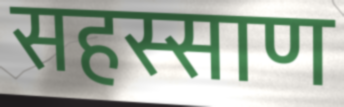
सहस्साण